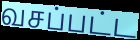
வசப்பட்ட